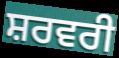
ਸ਼ਰਵਰੀ